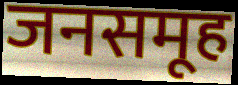
जनसमूह